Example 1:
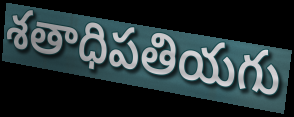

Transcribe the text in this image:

శతాధిపతియగు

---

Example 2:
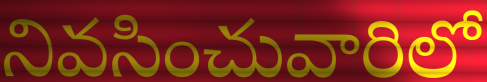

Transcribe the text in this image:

నివసించువారిలో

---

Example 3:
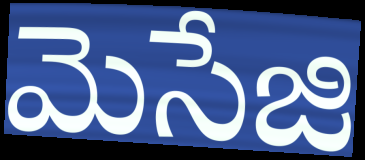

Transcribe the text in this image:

మెసేజి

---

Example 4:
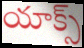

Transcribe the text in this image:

యాక్స్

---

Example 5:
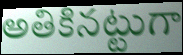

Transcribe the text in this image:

అతికినట్టుగా